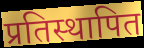
प्रतिस्थापित